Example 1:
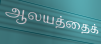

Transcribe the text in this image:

ஆலயத்தைக்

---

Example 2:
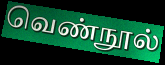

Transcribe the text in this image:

வெண்நூல்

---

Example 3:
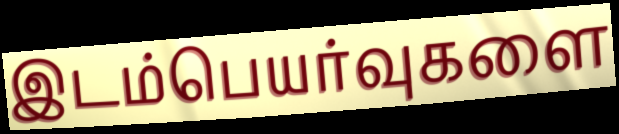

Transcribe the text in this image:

இடம்பெயர்வுகளை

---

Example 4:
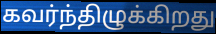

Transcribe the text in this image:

கவர்ந்திழுக்கிறது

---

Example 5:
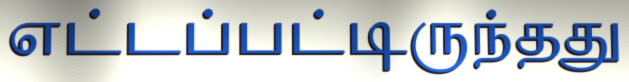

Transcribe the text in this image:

எட்டப்பட்டிருந்தது